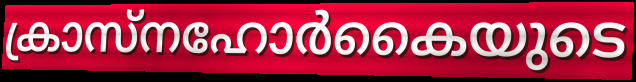
ക്രാസ്നഹോർകൈയുടെ